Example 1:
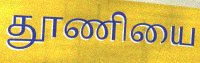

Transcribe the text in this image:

தூணியை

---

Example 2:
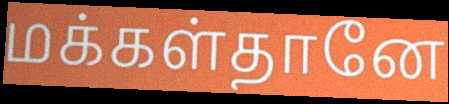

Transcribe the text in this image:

மக்கள்தானே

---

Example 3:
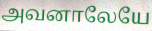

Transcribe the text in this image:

அவனாலேயே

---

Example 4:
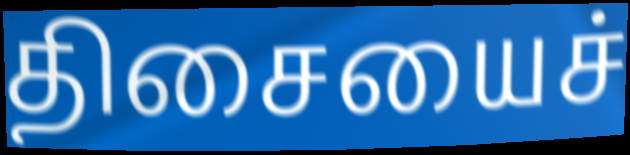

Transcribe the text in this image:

திசையைச்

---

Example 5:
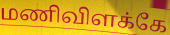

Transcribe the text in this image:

மணிவிளக்கே